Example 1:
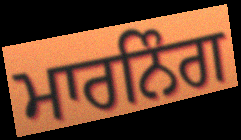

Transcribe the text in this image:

ਮਾਰਨਿੰਗ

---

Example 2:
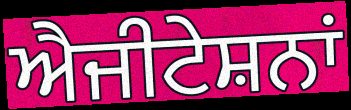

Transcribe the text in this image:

ਐਜੀਟੇਸ਼ਨਾਂ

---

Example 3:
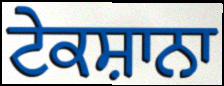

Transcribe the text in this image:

ਟੇਕਸ਼ਾਨਾ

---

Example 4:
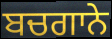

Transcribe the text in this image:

ਬਚਗਾਨੇ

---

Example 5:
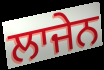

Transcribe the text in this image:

ਲਾਜੇਨ